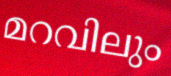
മറവിലും